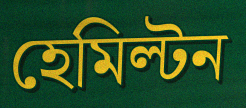
হেমিল্টন